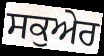
ਸਕੁਅੇਰ